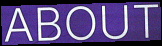
ABOUT